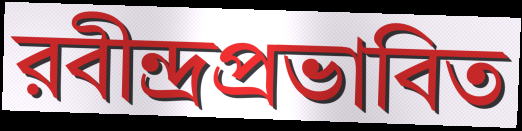
রবীন্দ্রপ্রভাবিত